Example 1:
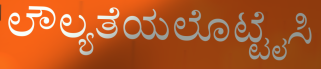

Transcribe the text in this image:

ಲೌಲ್ಯತೆಯಲೊಟ್ಟೈಸಿ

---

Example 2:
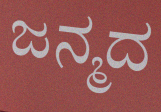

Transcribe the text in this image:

ಜನ್ಮದ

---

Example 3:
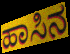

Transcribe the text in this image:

ಹಾಸಿನ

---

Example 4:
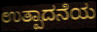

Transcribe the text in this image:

ಉತ್ಪಾದನೆಯ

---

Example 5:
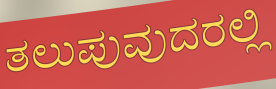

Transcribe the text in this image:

ತಲುಪುವುದರಲ್ಲಿ